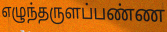
எழுந்தருளப்பண்ண